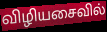
விழியசைவில்